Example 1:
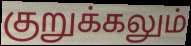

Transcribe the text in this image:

குறுக்கலும்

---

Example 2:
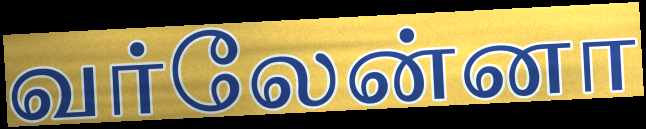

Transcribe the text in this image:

வர்லேன்னா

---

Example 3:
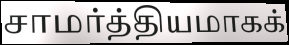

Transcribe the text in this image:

சாமர்த்தியமாகக்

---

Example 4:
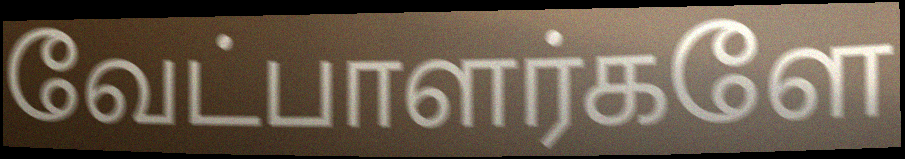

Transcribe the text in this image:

வேட்பாளர்களே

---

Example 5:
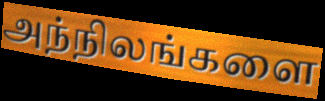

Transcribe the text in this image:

அந்நிலங்களை